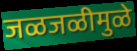
जळजळीमुळे